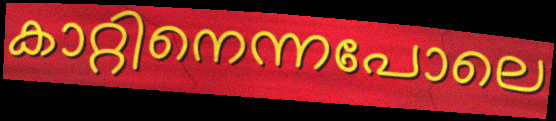
കാറ്റിനെന്നപോലെ